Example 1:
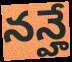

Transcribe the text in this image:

నన్హే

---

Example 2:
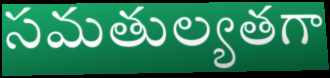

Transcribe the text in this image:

సమతుల్యతగా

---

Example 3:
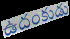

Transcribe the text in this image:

ఉదంకుడు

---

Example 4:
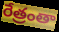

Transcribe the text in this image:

రేత్రంతా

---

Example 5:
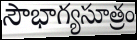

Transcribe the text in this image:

సౌభాగ్యసూత్రం